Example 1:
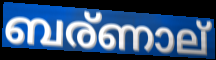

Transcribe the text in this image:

ബര്ണാല്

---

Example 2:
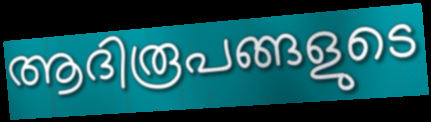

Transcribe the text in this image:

ആദിരൂപങ്ങളുടെ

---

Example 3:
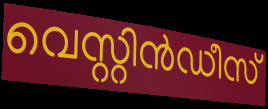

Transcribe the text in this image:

വെസ്റ്റിൻഡീസ്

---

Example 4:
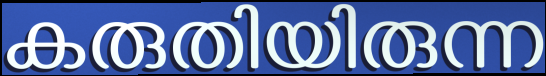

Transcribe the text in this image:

കരുതിയിരുന്ന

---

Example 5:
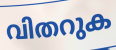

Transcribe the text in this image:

വിതറുക